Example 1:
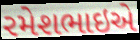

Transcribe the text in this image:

રમેશભાઇએ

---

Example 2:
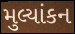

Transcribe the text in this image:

મુલ્યાંકન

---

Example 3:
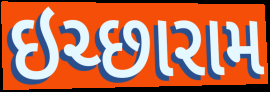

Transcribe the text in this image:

ઇચ્છારામ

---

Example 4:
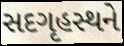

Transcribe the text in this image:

સદગૃહસ્થને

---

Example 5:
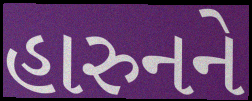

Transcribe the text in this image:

હારુનને